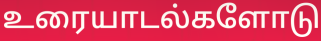
உரையாடல்களோடு